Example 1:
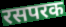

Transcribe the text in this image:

रसपरक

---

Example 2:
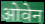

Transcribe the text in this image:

ओवेन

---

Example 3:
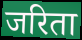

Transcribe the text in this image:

जरिता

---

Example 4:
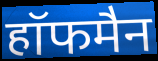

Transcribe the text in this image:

हॉफमैन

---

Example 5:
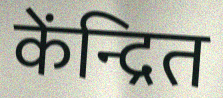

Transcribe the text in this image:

केंन्द्रित